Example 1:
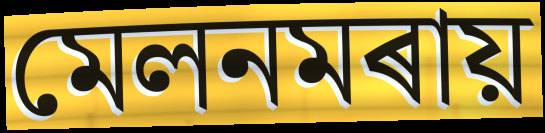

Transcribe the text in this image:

মেলনমৰায়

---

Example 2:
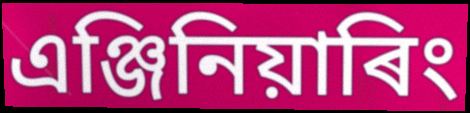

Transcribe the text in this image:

এঞ্জিনিয়াৰিং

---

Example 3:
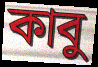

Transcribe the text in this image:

কাবু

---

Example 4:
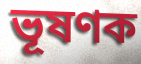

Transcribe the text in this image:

ভূষণক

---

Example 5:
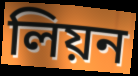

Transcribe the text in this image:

লিয়ন